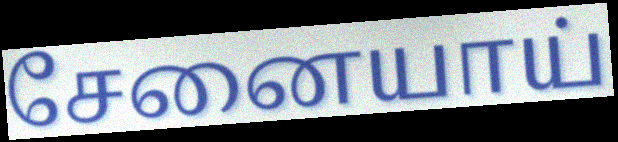
சேனையாய்